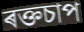
ৰক্তচাপ